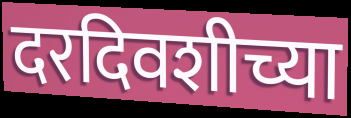
दरदिवशीच्या